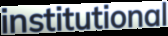
institutional